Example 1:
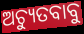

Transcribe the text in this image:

ଅଚ୍ୟୁତବାବୁ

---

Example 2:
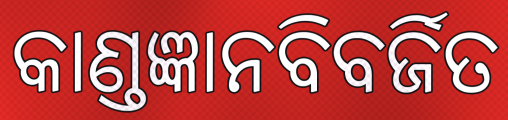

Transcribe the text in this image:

କାଣ୍ଡଜ୍ଞାନବିବର୍ଜିତ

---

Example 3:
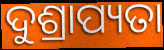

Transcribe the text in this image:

ଦୁଶ୍ରାପ୍ୟତା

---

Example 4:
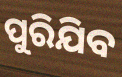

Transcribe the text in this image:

ପୁରିଯିବ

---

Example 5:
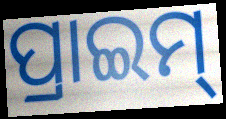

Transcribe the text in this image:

ପ୍ରାଇମ୍